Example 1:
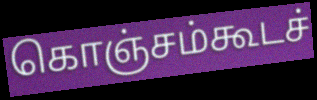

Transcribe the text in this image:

கொஞ்சம்கூடச்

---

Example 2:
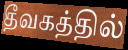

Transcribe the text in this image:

தீவகத்தில்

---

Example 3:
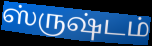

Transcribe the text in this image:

ஸ்ருஷ்டம்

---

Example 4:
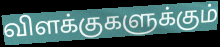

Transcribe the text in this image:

விளக்குகளுக்கும்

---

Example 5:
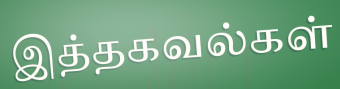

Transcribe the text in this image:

இத்தகவல்கள்